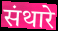
संथारे